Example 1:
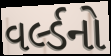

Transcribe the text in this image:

વર્લ્ડનો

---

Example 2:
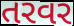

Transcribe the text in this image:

તરવર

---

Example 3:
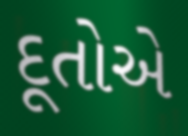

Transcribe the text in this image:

દૂતોએ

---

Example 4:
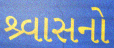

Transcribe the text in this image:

શ્ર્વાસનો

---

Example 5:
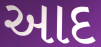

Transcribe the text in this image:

આદ